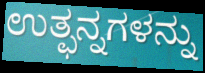
ಉತ್ಫನ್ನಗಳನ್ನು